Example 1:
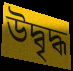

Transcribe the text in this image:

উদ্বৃদ্ধ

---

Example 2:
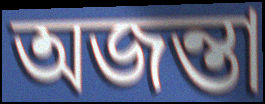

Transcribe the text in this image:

অজন্তা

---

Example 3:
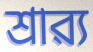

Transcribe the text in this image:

শ্ৰাৱ্য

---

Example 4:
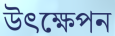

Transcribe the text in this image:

উৎক্ষেপন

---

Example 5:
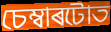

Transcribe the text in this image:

চেম্বাৰটোত